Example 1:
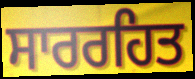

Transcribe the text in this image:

ਸਾਰਰਹਿਤ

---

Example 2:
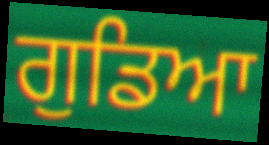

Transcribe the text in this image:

ਗੁਡਿਆ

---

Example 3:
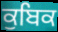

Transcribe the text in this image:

ਕੁਬਿਕ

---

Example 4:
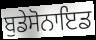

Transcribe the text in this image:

ਬੁਡੇਸੋਨਾਇਡ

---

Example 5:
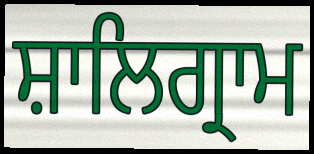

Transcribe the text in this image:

ਸ਼ਾਲਿਗ੍ਰਾਮ